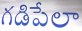
గడిపేలా